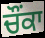
ਚੌੰਕਾ